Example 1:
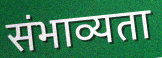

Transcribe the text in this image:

संभाव्यता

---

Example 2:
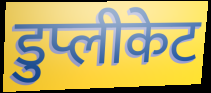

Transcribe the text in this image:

डुप्‍लीकेट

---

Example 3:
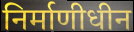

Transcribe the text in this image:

निर्माणीधीन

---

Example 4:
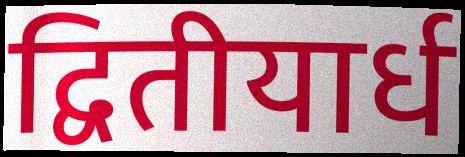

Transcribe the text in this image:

द्वितीयार्ध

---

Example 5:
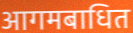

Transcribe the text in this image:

आगमबाधित